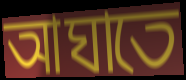
আঘাতে